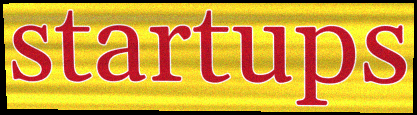
startups